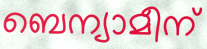
ബെന്യാമീന്